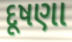
દૂષણા